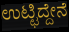
ಉಟ್ಟಿದ್ದೇನೆ